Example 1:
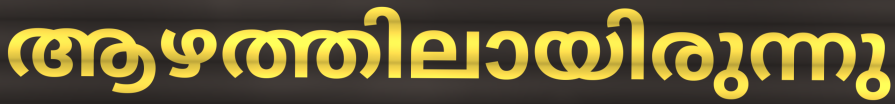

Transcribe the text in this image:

ആഴത്തിലായിരുന്നു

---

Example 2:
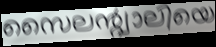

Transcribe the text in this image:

സൈലന്റ്വാലിയെ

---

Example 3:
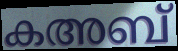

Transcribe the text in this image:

കഅബ്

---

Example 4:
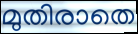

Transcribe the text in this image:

മുതിരാതെ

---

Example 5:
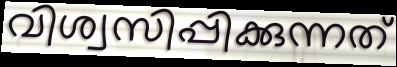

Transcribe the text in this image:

വിശ്വസിപ്പിക്കുന്നത്